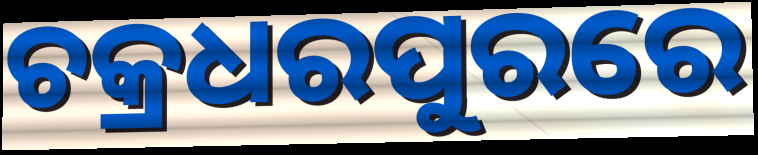
ଚକ୍ରଧରପୁରରେ